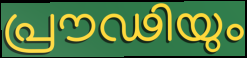
പ്രൗഢിയും